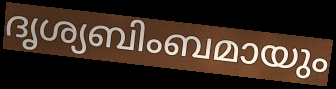
ദൃശ്യബിംബമായും